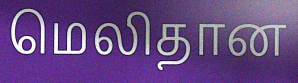
மெலிதான